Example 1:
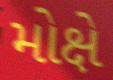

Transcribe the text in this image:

મોક્ષે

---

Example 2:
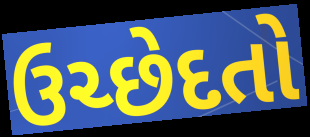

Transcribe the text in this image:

ઉચ્છેદતો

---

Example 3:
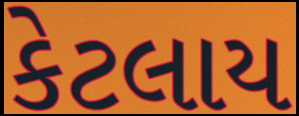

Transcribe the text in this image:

કેટલાય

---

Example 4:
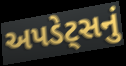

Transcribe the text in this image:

અપડેટ્સનું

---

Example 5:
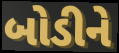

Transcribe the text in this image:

બોડીને